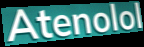
Atenolol